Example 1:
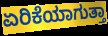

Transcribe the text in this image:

ಏರಿಕೆಯಾಗುತ್ತಾ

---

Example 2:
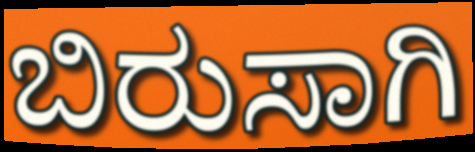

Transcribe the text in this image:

ಬಿರುಸಾಗಿ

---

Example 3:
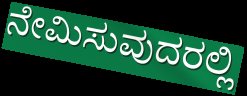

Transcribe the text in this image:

ನೇಮಿಸುವುದರಲ್ಲಿ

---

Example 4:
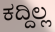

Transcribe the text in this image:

ಕದ್ದಿಲ್ಲ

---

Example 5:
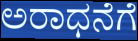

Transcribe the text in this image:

ಅರಾಧನೆಗೆ